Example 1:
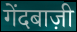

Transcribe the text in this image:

गेंदबाज़ी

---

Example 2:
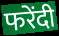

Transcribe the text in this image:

फरेंदी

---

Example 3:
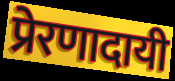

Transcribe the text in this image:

प्रेरणादायी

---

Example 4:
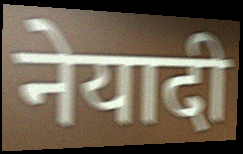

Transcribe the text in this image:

नेयादी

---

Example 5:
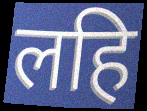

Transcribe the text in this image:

लहि